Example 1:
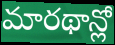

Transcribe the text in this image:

మారథాన్లో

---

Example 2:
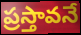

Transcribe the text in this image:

ప్రస్తావనే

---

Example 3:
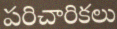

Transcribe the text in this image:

పరిచారికలు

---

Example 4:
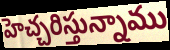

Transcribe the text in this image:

హెచ్చరిస్తున్నాము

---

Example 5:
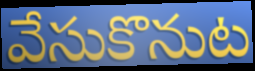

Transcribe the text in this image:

వేసుకొనుట